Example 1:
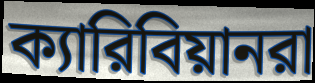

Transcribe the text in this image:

ক্যারিবিয়ানরা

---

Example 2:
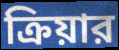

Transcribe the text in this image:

ক্রিয়ার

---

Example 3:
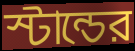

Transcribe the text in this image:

স্টান্ডের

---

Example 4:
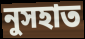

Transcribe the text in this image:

নুসহাত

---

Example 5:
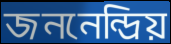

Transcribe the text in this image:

জননেন্দ্রিয়